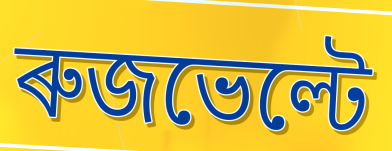
ৰুজভেল্টে